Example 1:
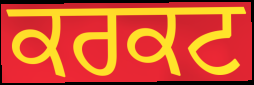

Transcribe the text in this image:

ਕਰਕਟ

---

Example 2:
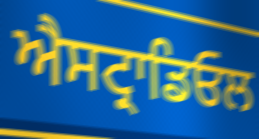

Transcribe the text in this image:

ਐਸਟ੍ਰਾਡਿਓਲ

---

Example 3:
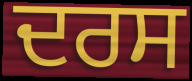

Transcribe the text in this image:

ਦਰਸ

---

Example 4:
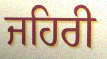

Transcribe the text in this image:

ਜਹਿਰੀ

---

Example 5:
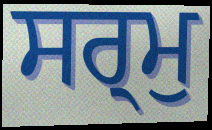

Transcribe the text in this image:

ਸਰ੍ਮੁ